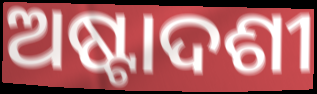
ଅଷ୍ଟାଦଶୀ